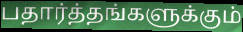
பதார்த்தங்களுக்கும்